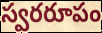
స్వరరూపం